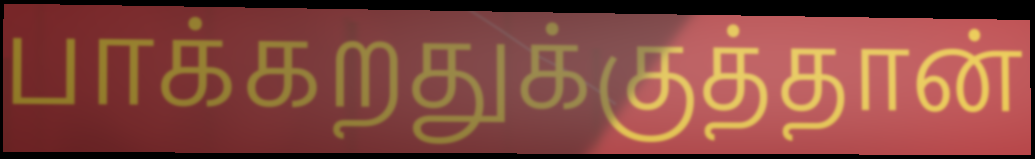
பாக்கறதுக்குத்தான்